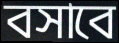
বসাবে